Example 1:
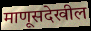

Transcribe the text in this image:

माणूसदेखील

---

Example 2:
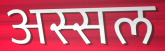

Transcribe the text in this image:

अस्सल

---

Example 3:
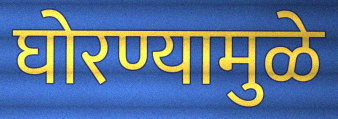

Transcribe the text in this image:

घोरण्यामुळे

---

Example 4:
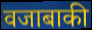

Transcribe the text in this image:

वजाबाकी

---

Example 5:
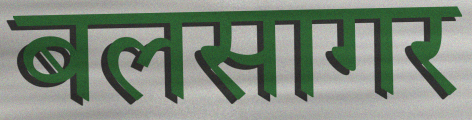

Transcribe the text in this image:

बलसागर